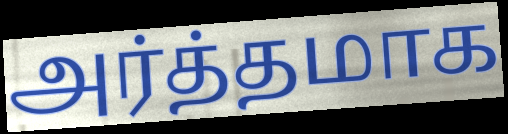
அர்த்தமாக